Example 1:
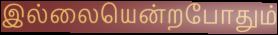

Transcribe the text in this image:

இல்லையென்றபோதும்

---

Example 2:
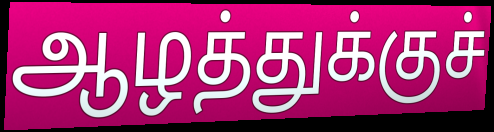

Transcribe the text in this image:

ஆழத்துக்குச்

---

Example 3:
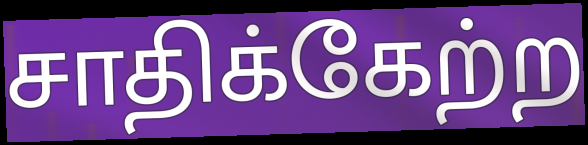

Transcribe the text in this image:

சாதிக்கேற்ற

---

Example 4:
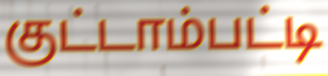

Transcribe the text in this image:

குட்டாம்பட்டி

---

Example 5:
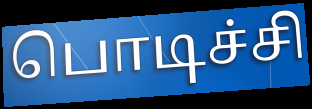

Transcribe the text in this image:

பொடிச்சி